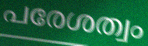
പരേശത്വം